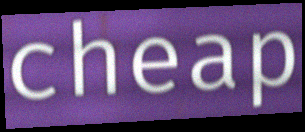
cheap